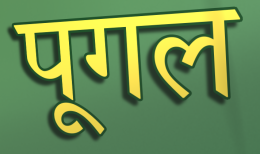
पूगल